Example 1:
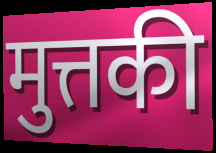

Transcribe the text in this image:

मुत्तकी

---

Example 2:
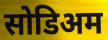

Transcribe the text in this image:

सोडिअम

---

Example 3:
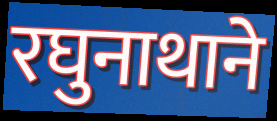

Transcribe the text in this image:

रघुनाथाने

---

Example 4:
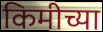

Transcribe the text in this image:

किमीच्या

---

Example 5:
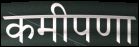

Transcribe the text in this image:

कमीपणा